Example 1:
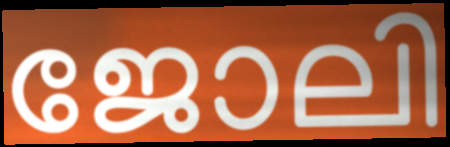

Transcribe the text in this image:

ജോലി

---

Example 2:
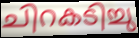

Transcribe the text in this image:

ചിറകടിച്ചു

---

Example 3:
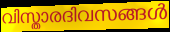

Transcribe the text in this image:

വിസ്താരദിവസങ്ങൾ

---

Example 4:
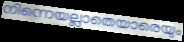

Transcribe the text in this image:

നിന്നെയല്ലാതെയാരെയും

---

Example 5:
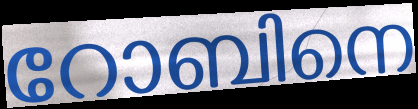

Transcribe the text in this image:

റോബിനെ